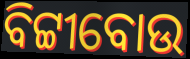
ବିଟ୍ଟୀବୋଉ